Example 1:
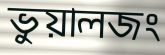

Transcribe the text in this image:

ভুয়ালজং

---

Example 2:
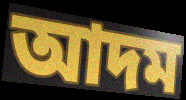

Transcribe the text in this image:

আদম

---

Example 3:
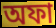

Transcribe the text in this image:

অফা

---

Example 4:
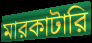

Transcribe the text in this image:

মারকাটারি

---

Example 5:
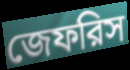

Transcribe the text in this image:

জেফরিস